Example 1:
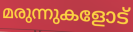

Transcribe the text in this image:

മരുന്നുകളോട്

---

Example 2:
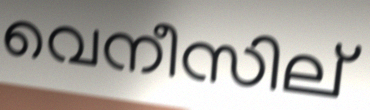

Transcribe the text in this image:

വെനീസില്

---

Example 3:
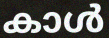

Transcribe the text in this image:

കാൾ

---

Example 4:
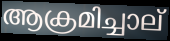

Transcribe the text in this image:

ആക്രമിച്ചാല്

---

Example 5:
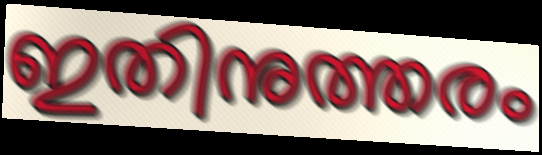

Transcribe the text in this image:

ഇതിനുത്തരം